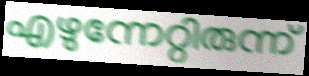
എഴുന്നേറ്റിരുന്ന്